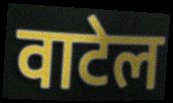
वाटेल